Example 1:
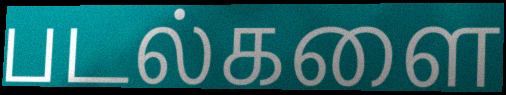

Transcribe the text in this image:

படல்களை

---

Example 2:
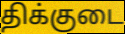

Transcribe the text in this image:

திக்குடை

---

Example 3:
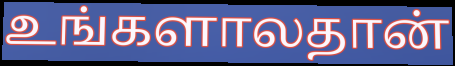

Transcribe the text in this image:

உங்களாலதான்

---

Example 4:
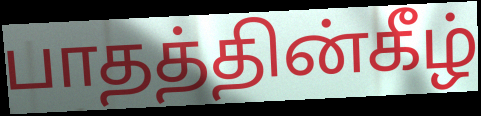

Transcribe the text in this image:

பாதத்தின்கீழ்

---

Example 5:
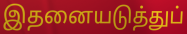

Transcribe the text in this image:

இதனையடுத்துப்